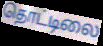
தொட்டிலை